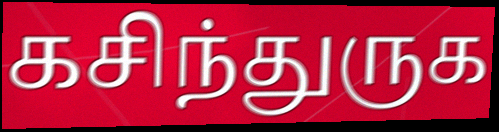
கசிந்துருக